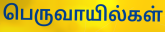
பெருவாயில்கள்